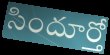
సిందూర్తో